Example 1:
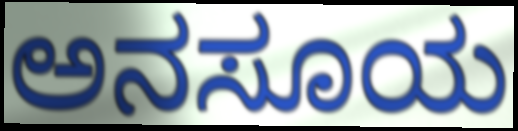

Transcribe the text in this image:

ಅನಸೂಯ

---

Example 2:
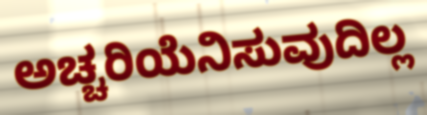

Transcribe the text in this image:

ಅಚ್ಚರಿಯೆನಿಸುವುದಿಲ್ಲ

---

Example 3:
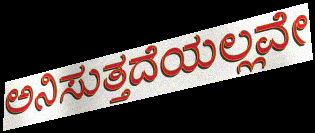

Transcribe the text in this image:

ಅನಿಸುತ್ತದೆಯಲ್ಲವೇ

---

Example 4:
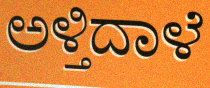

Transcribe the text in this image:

ಅಳ್ತಿದಾಳೆ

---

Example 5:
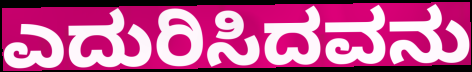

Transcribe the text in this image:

ಎದುರಿಸಿದವನು